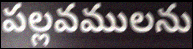
పల్లవములను